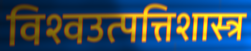
विश्वउत्पत्तिशास्त्र